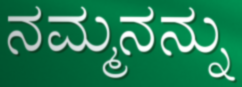
ನಮ್ಮನನ್ನು